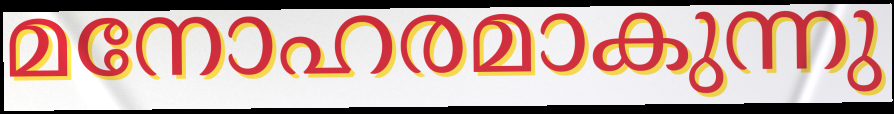
മനോഹരമാകുന്നു